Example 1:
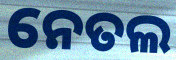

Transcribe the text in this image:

ନେତଲ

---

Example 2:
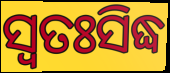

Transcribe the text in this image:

ସ୍ବତଃସିଦ୍ଧ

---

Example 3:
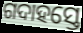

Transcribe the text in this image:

ଗଦାହସ୍ତେ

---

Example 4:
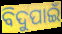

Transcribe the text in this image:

ବିଦୁପାଇଁ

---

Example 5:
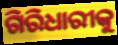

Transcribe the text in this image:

ଗିରିଧାରୀକୁ